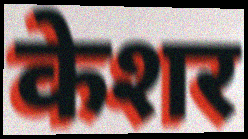
केशर